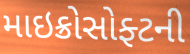
માઇક્રોસોફ્ટની